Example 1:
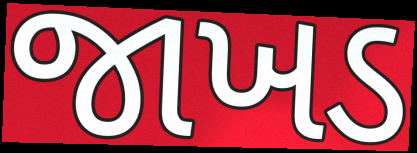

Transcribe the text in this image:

જાખડ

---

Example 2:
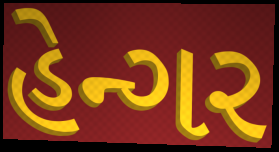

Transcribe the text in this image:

હેન્ગર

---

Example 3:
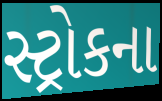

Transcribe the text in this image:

સ્ટ્રોકના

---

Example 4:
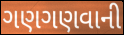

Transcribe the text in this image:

ગણગણવાની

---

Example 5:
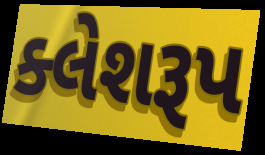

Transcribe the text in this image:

ક્લેશરૂપ